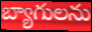
బ్యాగులను